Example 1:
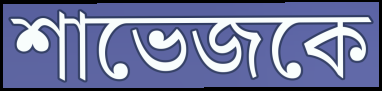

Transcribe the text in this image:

শাভেজকে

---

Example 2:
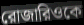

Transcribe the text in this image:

রোজারিওকে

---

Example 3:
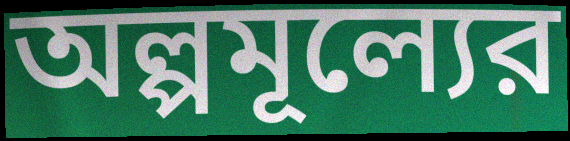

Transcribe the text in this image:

অল্পমূল্যের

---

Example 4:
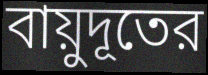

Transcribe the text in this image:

বায়ুদূতের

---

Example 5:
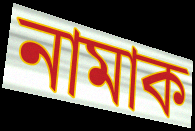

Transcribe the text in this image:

নামাক